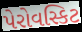
પેરોવસ્કિટ